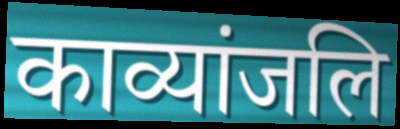
काव्यांजलि